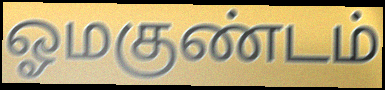
ஓமகுண்டம்